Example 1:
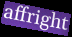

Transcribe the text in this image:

affright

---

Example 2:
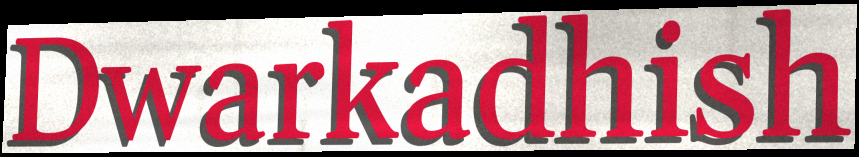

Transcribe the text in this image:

Dwarkadhish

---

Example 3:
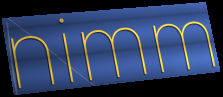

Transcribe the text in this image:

nimm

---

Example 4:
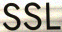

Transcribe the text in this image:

SSL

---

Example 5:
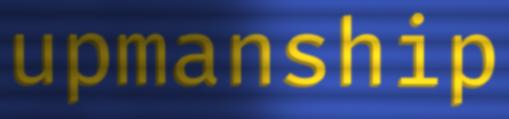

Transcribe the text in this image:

upmanship